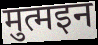
मुत्मइन